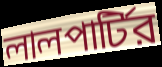
লালপার্টির